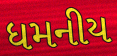
ધમનીય